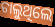
ଚାଲୁଥିଲେ